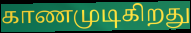
காணமுடிகிறது